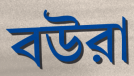
বউরা